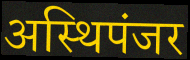
अस्थिपंजर